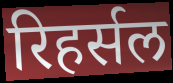
रिहर्सल